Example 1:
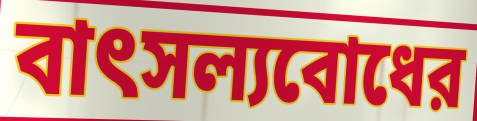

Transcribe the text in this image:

বাৎসল্যবোধের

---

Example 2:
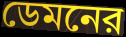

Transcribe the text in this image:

ডেমনের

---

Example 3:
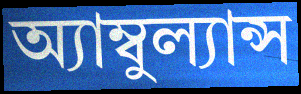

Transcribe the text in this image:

অ্যাম্বুল্যান্স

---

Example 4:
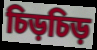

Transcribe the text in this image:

চিড়চিড়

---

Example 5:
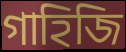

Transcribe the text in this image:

গাহিজি